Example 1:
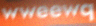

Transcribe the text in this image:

wweewq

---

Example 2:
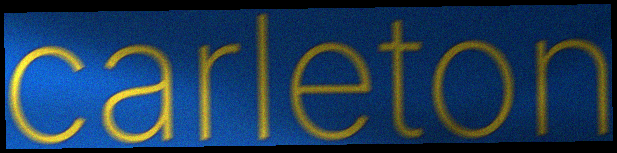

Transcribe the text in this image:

carleton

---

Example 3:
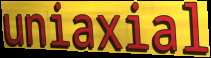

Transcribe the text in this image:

uniaxial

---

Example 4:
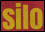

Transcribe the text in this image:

silo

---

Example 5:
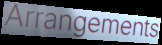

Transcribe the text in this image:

Arrangements